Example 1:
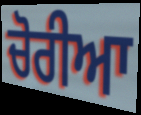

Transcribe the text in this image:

ਚੋਰੀਆ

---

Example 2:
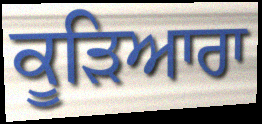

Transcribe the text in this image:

ਕੂੜਿਆਰਾ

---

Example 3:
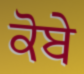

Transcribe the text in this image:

ਕੋਬੇ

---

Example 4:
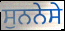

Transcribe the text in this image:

ਸੁਨਨੇਸੇ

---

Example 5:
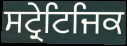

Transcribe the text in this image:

ਸਟ੍ਰੇਟਿਜਿਕ